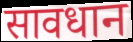
सावधान